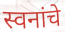
स्वनांचे